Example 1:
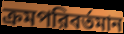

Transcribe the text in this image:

ক্রমপরিবর্তমান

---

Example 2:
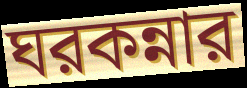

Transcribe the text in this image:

ঘরকন্নার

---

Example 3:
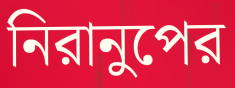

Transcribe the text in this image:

নিরানুপের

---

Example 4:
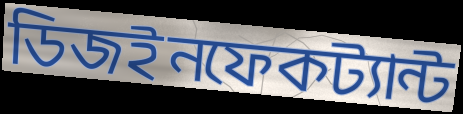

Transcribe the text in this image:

ডিজইনফেকট্যান্ট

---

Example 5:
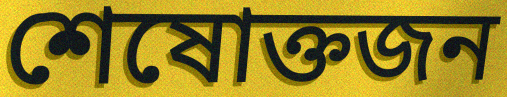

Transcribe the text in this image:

শেষোক্তজন